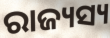
ରାଜ୍ୟସ୍ୟ